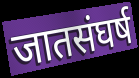
जातसंघर्ष